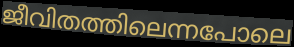
ജീവിതത്തിലെന്നപോലെ